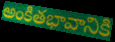
అంకితభావానికి